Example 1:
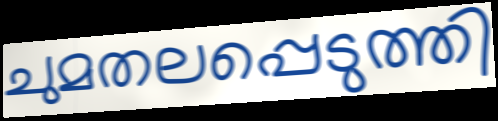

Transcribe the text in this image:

ചുമതലപ്പെടുത്തി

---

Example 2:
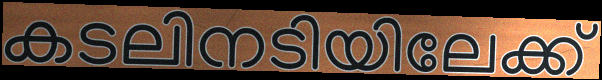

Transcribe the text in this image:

കടലിനടിയിലേക്ക്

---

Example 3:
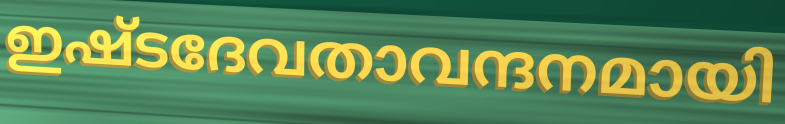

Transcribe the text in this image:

ഇഷ്ടദേവതാവന്ദനമായി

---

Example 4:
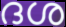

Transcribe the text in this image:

ദശ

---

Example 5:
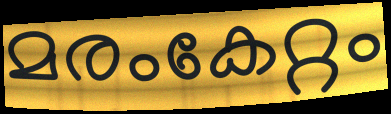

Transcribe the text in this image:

മരംകേറ്റം